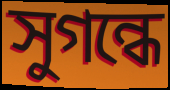
সুগন্ধে